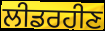
ਲੀਡਰਹੀਣ